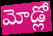
మోడ్లో